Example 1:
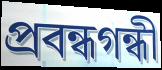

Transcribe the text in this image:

প্রবন্ধগন্ধী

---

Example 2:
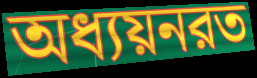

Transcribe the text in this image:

অধ্যয়নরত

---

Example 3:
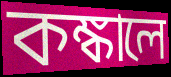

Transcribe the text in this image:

কঙ্কালে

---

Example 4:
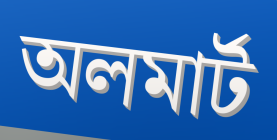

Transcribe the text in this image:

অলমার্ট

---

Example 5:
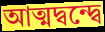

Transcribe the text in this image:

আত্মদ্বন্দ্বে